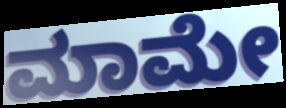
ಮಾಮೇ